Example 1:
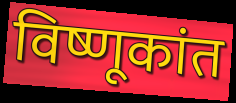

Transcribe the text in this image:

विष्णूकांत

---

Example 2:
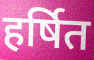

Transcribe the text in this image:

हर्षित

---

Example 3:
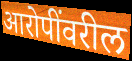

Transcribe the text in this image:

आरोपींवरील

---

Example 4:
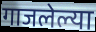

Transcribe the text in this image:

गाजलेल्या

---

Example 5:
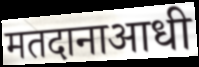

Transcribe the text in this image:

मतदानाआधी